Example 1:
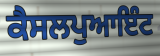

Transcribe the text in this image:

ਕੈਸਲਪੁਆਇੰਟ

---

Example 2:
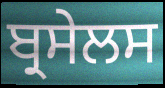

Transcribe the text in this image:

ਬ੍ਰਸੇਲਸ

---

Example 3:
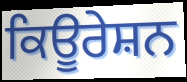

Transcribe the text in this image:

ਕਿਊਰੇਸ਼ਨ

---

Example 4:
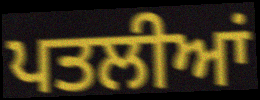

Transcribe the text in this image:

ਪਤਲੀਆਂ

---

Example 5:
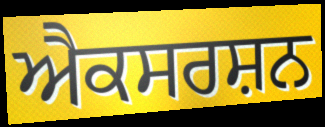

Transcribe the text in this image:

ਐਕਸਰਸ਼ਨ